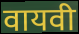
वायवी